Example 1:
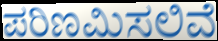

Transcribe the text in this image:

ಪರಿಣಮಿಸಲಿವೆ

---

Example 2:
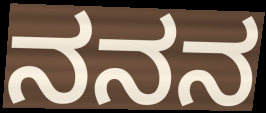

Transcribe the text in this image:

ನನನ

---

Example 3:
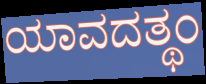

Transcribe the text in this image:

ಯಾವದತ್ಥಂ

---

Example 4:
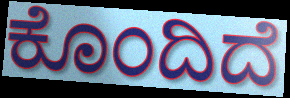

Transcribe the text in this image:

ಕೊಂದಿದೆ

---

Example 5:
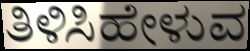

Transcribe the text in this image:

ತಿಳಿಸಿಹೇಳುವ